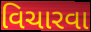
વિચારવા